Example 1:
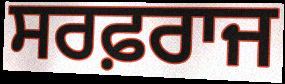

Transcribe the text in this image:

ਸਰਫ਼ਰਾਜ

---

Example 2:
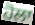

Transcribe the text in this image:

ਹੋਲਾ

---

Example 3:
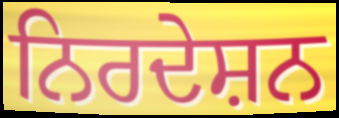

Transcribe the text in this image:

ਨਿਰਦੇਸ਼ਨ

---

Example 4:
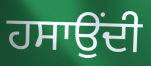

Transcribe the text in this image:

ਹਸਾਉਂਦੀ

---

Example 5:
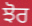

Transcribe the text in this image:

ਝੋਰ